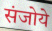
संजोये